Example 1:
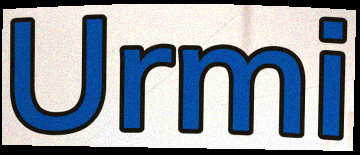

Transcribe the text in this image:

Urmi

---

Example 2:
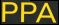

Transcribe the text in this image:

PPA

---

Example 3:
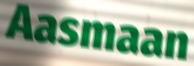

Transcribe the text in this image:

Aasmaan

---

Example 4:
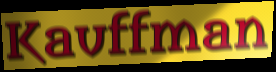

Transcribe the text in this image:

Kauffman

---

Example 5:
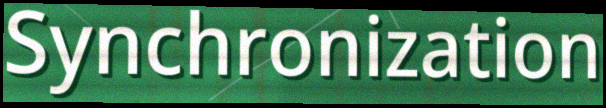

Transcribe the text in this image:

Synchronization